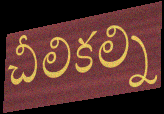
చీలికల్ని